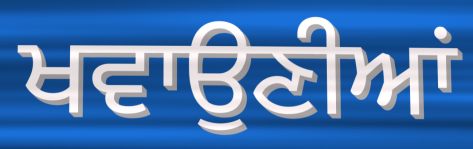
ਖਵਾਉਣੀਆਂ